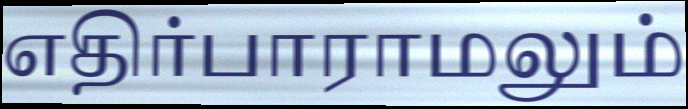
எதிர்பாராமலும்